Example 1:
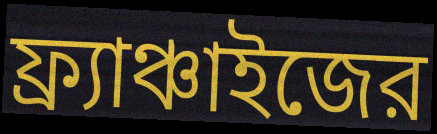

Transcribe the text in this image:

ফ্র্যাঞ্চাইজের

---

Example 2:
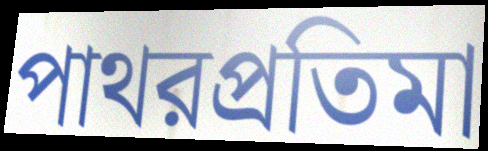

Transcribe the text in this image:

পাথরপ্রতিমা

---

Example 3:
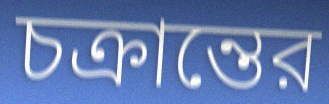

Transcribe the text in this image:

চক্রান্তের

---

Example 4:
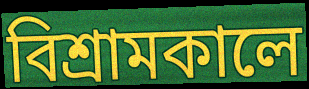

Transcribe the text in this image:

বিশ্রামকালে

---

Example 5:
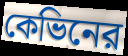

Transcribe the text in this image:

কেভিনের